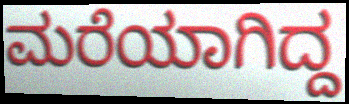
ಮರೆಯಾಗಿದ್ದ